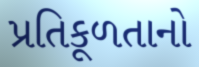
પ્રતિકૂળતાનો